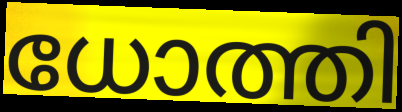
ധോത്തി